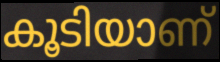
കൂടിയാണ്